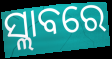
ସ୍ଲାବରେ